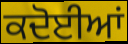
ਕਦੋਈਆਂ